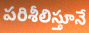
పరిశీలిస్తూనే